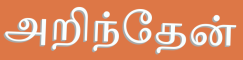
அறிந்தேன்